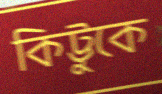
কিট্টুকে